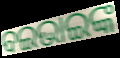
ବଇଭାଇଙ୍କ